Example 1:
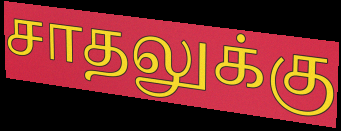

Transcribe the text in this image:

சாதலுக்கு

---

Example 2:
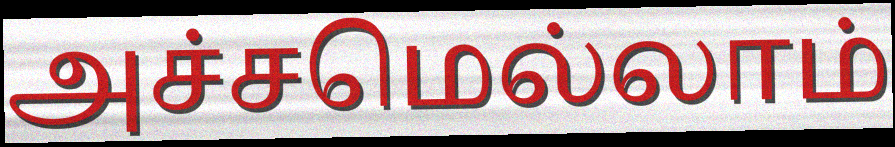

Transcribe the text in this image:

அச்சமெல்லாம்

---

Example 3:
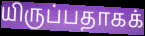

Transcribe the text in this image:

யிருப்பதாகக்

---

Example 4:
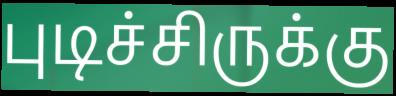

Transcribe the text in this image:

புடிச்சிருக்கு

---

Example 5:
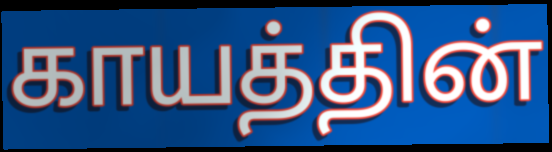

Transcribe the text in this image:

காயத்தின்